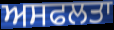
ਅਸਫਲਤਾ